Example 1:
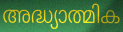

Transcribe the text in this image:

അദ്ധ്യാത്മിക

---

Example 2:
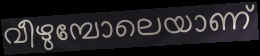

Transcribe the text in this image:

വീഴുമ്പോലെയാണ്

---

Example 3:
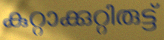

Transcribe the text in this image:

കുറ്റാക്കുറ്റിരുട്ട്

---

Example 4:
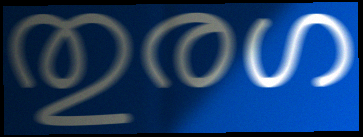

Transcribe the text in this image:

തുരഗ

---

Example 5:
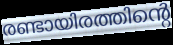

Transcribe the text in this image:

രണ്ടായിരത്തിന്റെ